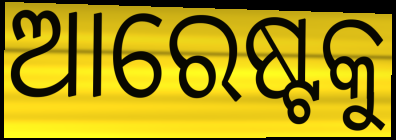
ଆରେଷ୍ଟକୁ